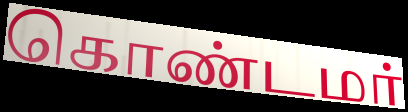
கொண்டமர்